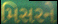
મિસરને